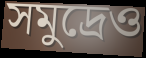
সমুদ্রেও